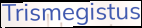
Trismegistus